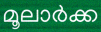
മൂലാർക്ക